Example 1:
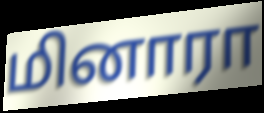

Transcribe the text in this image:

மினாரா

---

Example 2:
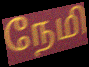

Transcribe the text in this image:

நேமி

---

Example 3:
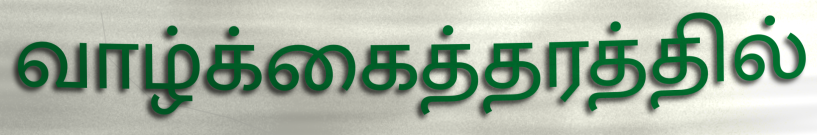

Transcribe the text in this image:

வாழ்க்கைத்தரத்தில்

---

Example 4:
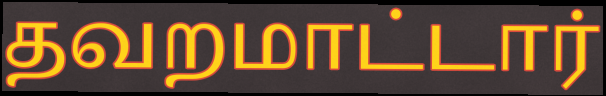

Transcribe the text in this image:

தவறமாட்டார்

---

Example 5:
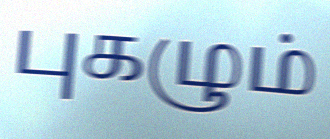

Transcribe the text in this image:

புகழும்